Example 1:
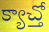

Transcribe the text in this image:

క్యాచ్తో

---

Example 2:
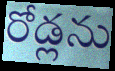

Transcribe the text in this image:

రోడ్లను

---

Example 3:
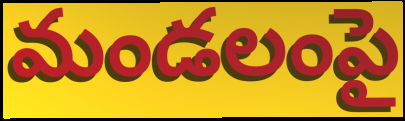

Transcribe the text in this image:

మండలంపై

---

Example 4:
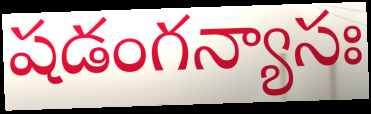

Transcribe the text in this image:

షడంగన్యాసః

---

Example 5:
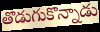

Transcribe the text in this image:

తొడుగుకొన్నాడు